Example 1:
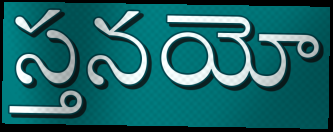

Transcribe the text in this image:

స్తనయో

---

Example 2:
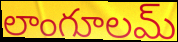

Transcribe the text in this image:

లాంగూలమ్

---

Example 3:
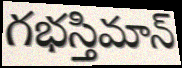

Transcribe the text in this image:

గభస్తిమాన్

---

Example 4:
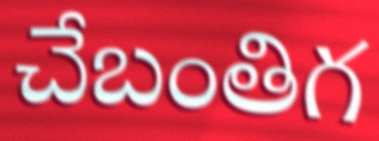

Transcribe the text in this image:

చేబంతిగ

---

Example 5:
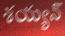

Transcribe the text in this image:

శయ్యన్